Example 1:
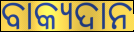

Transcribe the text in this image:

ବାକ୍ୟଦାନ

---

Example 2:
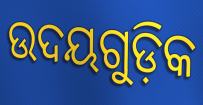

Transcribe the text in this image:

ଉଦୟଗୁଡ଼ିକ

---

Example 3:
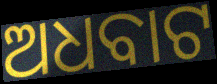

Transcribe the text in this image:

ଅଧବାଟ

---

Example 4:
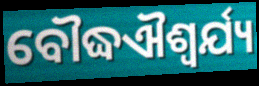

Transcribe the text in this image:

ବୌଦ୍ଧଐଶ୍ୱର୍ଯ୍ୟ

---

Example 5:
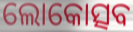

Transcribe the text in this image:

ଲୋକୋତ୍ସବ